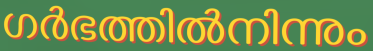
ഗർഭത്തിൽനിന്നും